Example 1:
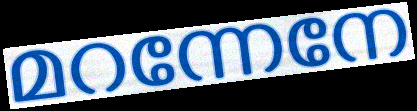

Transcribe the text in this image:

മറന്നേനേ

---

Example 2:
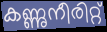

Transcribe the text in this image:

കണ്ണുനീരിറ്റ്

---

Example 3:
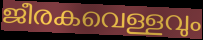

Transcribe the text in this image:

ജീരകവെള്ളവും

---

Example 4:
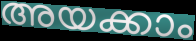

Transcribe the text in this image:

അയക്കാം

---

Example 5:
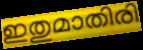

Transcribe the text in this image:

ഇതുമാതിരി